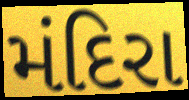
મંદિરા